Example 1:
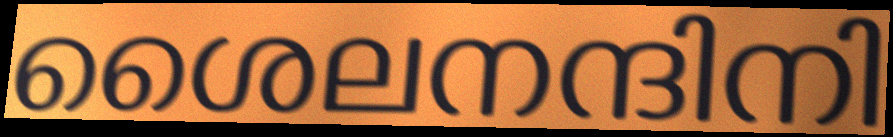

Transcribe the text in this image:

ശൈലനന്ദിനി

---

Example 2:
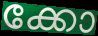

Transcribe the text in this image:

ക്കോ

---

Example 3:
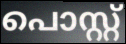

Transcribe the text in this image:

പൊസ്റ്റ്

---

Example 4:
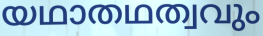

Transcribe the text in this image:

യഥാതഥത്വവും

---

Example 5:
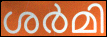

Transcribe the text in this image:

ശർമി